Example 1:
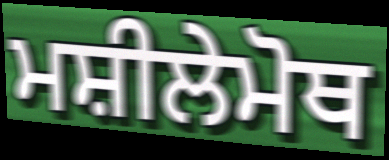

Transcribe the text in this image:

ਮਸ਼ੀਲੇਮੋਥ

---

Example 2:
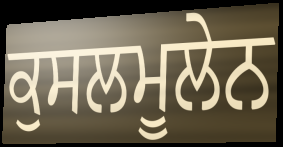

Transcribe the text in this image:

ਕੁਸਲਮੂਲੇਨ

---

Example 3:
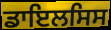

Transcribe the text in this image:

ਡਾਇਲਸਿਸ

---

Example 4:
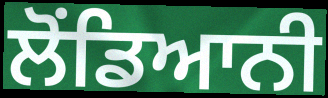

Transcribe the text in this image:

ਲੋਂਡਿਆਨੀ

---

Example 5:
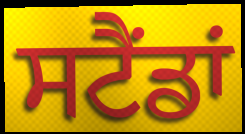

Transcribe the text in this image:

ਸਟੈਂਡਾਂ